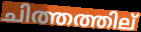
ചിത്തത്തില്